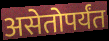
असेतोपर्यंत